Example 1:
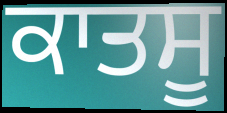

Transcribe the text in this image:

ਕਾਤਸੂ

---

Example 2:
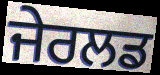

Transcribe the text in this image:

ਜੇਰਲਡ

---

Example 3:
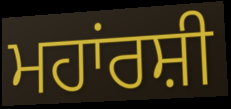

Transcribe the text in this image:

ਮਹਾਂਰਸ਼ੀ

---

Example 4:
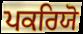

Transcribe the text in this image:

ਪਕਰਿਯੋ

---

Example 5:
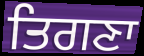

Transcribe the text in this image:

ਤਿਗਣਾ